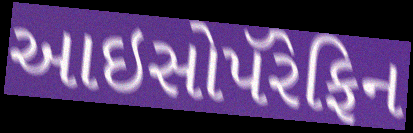
આઇસોપૅરેફિન